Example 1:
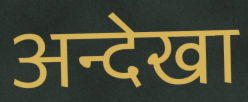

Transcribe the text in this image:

अन्देखा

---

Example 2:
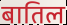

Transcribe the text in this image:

बातिल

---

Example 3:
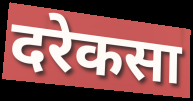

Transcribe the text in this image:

दरेकसा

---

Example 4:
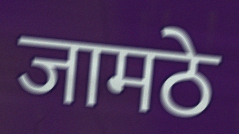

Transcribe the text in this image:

जामठे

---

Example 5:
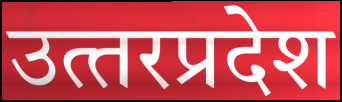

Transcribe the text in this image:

उत्‍तरप्रदेश